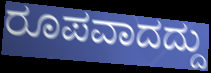
ರೂಪವಾದದ್ದು